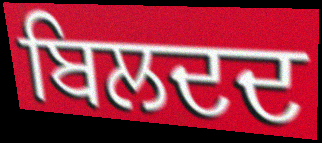
ਬਿਲਦਦ